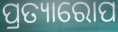
ପ୍ରତ୍ୟାରୋପ